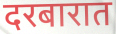
दरबारात